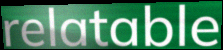
relatable